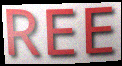
REE